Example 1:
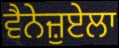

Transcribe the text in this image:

ਵੈਨੇਜ਼ੁਏਲਾ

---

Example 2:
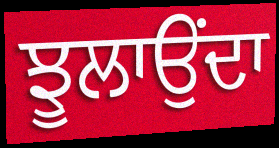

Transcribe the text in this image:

ਝੂਲਾਉਂਦਾ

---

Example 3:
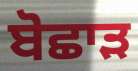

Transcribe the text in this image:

ਬੋਛਾੜ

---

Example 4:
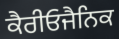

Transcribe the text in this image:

ਕੈਰੀਓਜੈਨਿਕ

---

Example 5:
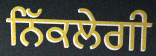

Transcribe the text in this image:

ਨਿੱਕਲੇਗੀ